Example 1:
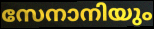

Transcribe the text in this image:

സേനാനിയും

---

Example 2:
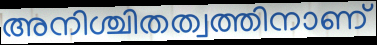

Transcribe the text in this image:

അനിശ്ചിതത്വത്തിനാണ്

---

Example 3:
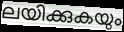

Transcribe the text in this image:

ലയിക്കുകയും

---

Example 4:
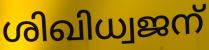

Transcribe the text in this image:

ശിഖിധ്വജന്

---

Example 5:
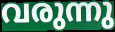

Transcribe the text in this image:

വരുന്നു